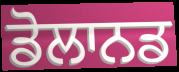
ਡੋਲਾਨਡ